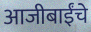
आजीबाईंचे